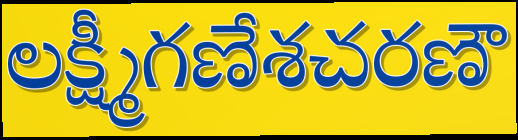
లక్ష్మీగణేశచరణౌ